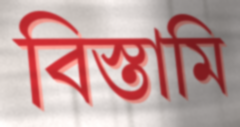
বিস্তামি